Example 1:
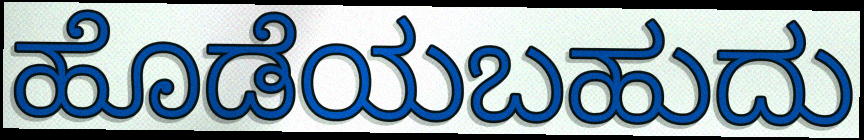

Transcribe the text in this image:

ಹೊಡೆಯಬಹುದು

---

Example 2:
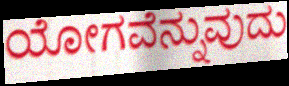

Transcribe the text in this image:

ಯೋಗವೆನ್ನುವುದು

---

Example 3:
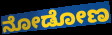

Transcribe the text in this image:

ನೋಡೋಣ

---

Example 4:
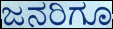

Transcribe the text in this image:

ಜನರಿಗೂ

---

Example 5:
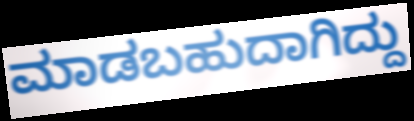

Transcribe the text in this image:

ಮಾಡಬಹುದಾಗಿದ್ದು